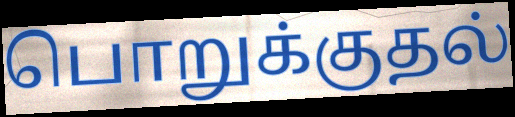
பொறுக்குதல்